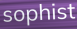
sophist